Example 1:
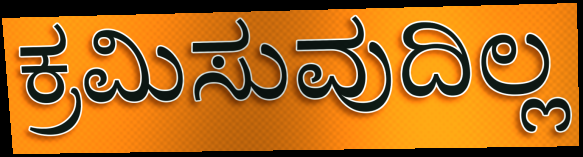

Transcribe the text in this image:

ಕ್ರಮಿಸುವುದಿಲ್ಲ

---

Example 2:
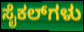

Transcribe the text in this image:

ಸೈಕಲ್‌ಗಳು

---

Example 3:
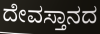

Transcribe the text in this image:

ದೇವಸ್ತಾನದ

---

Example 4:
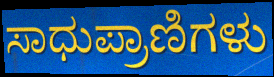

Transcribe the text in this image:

ಸಾಧುಪ್ರಾಣಿಗಳು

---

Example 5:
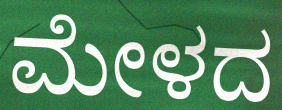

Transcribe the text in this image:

ಮೇಳದ